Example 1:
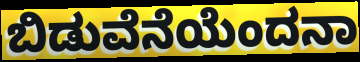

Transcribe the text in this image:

ಬಿಡುವೆನೆಯೆಂದನಾ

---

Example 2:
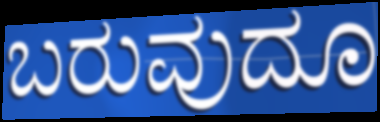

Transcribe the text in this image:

ಬರುವುದೂ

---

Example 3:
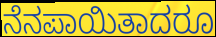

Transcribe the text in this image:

ನೆನಪಾಯಿತಾದರೂ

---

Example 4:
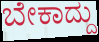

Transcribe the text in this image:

ಬೇಕಾದ್ದು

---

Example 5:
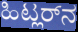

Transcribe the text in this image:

ಹಿಟ್ಲರ್‌ನ